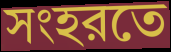
সংহরতে